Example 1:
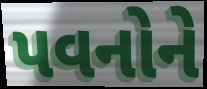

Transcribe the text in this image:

પવનોને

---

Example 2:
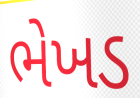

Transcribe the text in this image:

ભેખડ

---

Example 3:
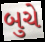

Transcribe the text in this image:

બુચે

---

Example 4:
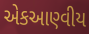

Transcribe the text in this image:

એકઆણ્વીય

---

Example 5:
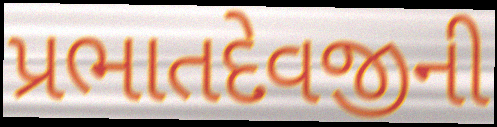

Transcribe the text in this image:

પ્રભાતદેવજીની